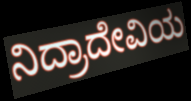
ನಿದ್ರಾದೇವಿಯ